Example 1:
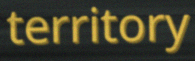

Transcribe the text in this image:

territory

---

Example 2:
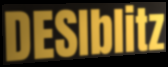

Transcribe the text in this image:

DESIblitz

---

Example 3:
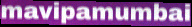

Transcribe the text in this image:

mavipamumbai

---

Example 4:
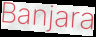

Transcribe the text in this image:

Banjara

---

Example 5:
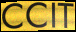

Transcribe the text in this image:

CCIT